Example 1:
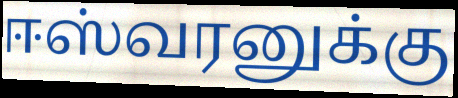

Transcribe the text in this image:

ஈஸ்வரனுக்கு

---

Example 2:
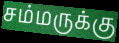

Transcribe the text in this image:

சம்மருக்கு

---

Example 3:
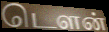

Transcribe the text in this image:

டௌன்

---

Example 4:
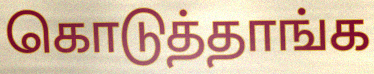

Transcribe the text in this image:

கொடுத்தாங்க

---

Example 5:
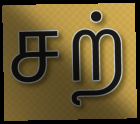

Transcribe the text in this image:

சற்